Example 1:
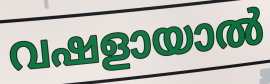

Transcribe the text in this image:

വഷളായാൽ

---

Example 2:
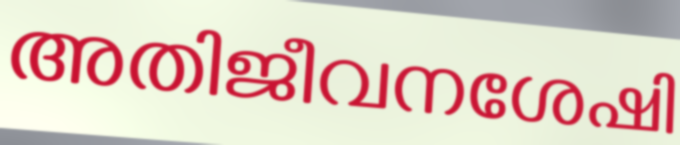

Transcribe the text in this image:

അതിജീവനശേഷി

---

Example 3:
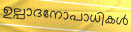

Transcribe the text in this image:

ഉല്പാദനോപാധികൾ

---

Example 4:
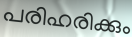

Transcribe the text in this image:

പരിഹരിക്കും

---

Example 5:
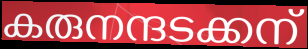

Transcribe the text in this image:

കരുനന്ദടക്കന്